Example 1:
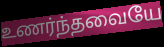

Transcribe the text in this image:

உணர்ந்தவையே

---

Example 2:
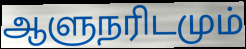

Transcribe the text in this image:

ஆளுநரிடமும்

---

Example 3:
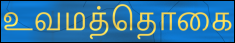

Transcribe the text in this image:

உவமத்தொகை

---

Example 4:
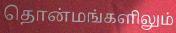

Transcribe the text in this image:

தொன்மங்களிலும்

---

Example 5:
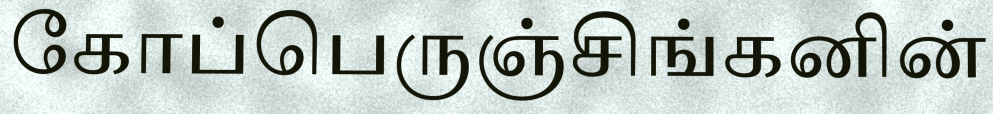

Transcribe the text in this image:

கோப்பெருஞ்சிங்கனின்